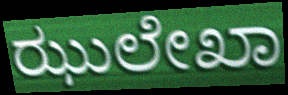
ಝುಲೇಖಾ